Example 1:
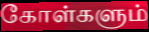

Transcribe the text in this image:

கோள்களும்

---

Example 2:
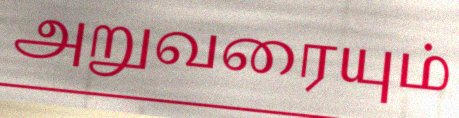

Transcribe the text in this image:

அறுவரையும்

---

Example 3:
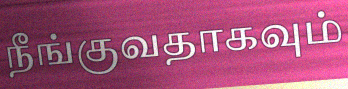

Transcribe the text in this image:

நீங்குவதாகவும்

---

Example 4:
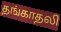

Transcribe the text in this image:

தங்காதலி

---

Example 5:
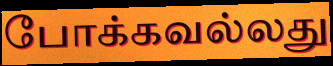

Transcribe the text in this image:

போக்கவல்லது